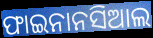
ଫାଇନାନସିଆଲ